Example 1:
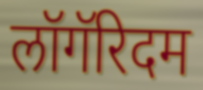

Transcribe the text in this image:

लॉगॅरिदम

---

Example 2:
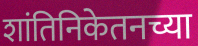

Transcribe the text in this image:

शांतिनिकेतनच्या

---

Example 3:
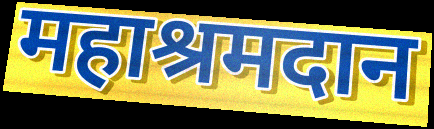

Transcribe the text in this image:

महाश्रमदान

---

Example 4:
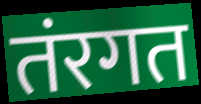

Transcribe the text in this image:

तंरगत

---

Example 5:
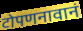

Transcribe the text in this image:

टोपणनावानं